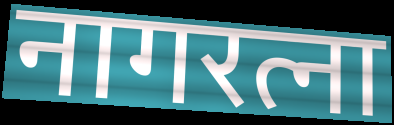
नागरत्ना